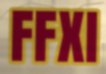
FFXI